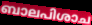
ബാലപിശാച